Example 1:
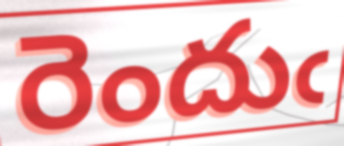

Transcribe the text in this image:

రెందుఁ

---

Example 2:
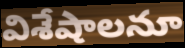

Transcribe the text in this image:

విశేషాలనూ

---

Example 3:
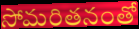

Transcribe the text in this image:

సోమరితనంతో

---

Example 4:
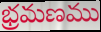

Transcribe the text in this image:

భ్రమణము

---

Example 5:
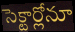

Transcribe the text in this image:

సెక్టార్లోనూ